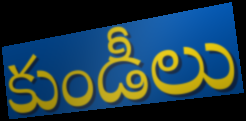
కుండీలు